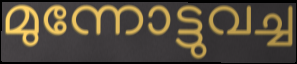
മുന്നോട്ടുവച്ച